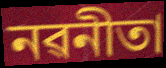
নৱনীতা